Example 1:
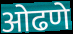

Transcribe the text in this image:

ओढणे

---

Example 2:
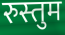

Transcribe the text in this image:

रुस्तुम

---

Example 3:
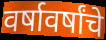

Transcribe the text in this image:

वर्षावर्षांचे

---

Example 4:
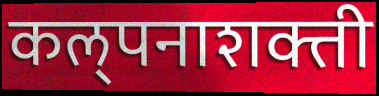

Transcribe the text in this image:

कल्पनाशक्ती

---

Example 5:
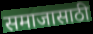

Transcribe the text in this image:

समाजासाठी